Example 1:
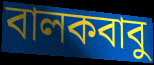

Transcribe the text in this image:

বালকবাবু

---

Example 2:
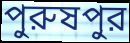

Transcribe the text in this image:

পুরুষপুর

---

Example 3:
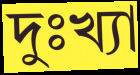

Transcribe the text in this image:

দুঃখ্যা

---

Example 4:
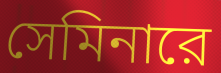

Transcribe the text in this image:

সেমিনারে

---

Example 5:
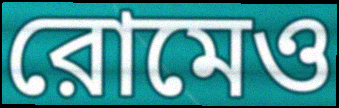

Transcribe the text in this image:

রোমেও